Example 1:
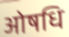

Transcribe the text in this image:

ओषधि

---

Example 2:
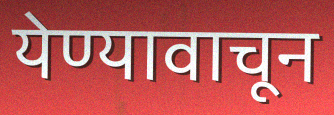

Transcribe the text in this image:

येण्यावाचून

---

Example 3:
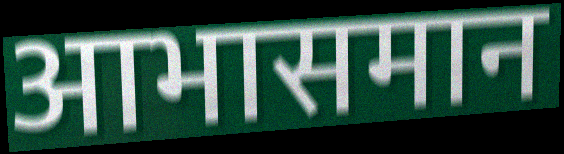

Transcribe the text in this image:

आभासमान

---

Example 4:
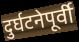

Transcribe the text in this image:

दुर्घटनेपूर्वी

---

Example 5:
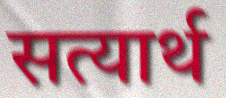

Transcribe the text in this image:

सत्यार्थ